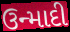
ઉન્માદી